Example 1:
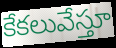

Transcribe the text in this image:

కేకలువేస్తూ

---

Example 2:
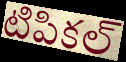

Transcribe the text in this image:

టిపికల్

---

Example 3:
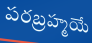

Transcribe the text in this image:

పరబ్రహ్మయే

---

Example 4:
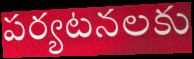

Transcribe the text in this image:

పర్యటనలకు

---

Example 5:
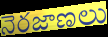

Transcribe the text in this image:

నెరజాణలు